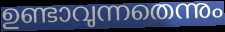
ഉണ്ടാവുന്നതെന്നും